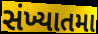
સંખ્યાતમા